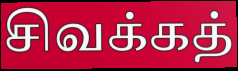
சிவக்கத்